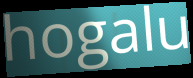
hogalu